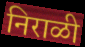
निराळी